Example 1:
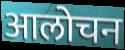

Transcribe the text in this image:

आलोचन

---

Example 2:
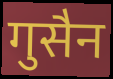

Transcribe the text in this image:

गुसैन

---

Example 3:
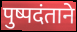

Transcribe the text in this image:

पुष्पदंताने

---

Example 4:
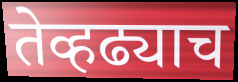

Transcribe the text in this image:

तेव्हढ्याच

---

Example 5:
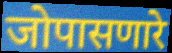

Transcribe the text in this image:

जोपासणारे